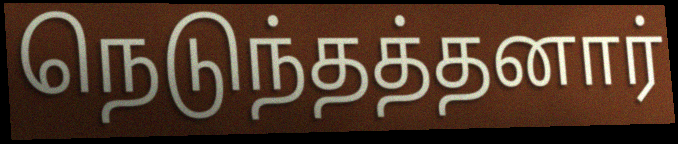
நெடுந்தத்தனார்